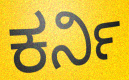
ಕರ್ನಿ